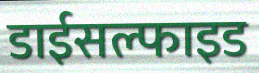
डाईसल्फाइड